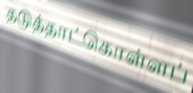
தடுத்தாட்கொள்ளப்